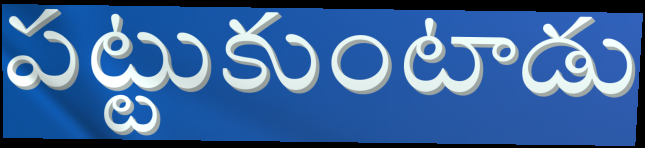
పట్టుకుంటాడు